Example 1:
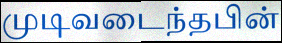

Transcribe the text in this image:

முடிவடைந்தபின்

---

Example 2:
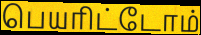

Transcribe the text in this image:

பெயரிட்டோம்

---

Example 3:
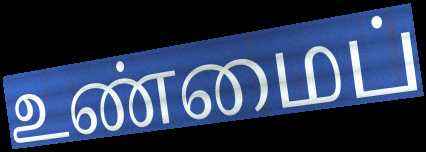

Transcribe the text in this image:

உண்மைப்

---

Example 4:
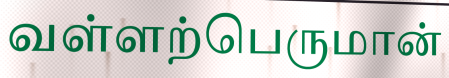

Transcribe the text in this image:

வள்ளற்பெருமான்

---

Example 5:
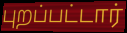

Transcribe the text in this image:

புறப்பட்டார்